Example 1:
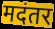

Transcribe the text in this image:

मदंतर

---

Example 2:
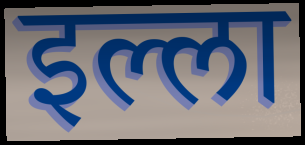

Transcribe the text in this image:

इल्ला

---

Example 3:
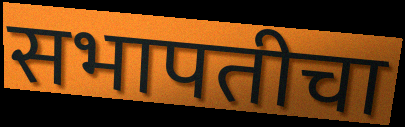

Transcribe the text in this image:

सभापतीचा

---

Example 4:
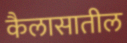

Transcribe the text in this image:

कैलासातील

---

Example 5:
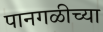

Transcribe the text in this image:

पानगळीच्या